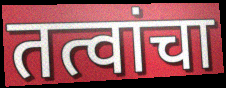
तत्वांचा